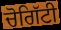
ਚੋਗਿੱਟੀ